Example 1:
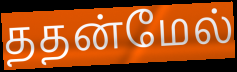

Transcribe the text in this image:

ததன்மேல்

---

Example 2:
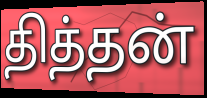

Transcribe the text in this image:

தித்தன்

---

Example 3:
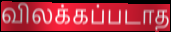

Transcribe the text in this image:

விலக்கப்படாத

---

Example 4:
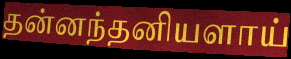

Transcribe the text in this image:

தன்னந்தனியளாய்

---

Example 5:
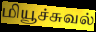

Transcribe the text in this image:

மியூச்சுவல்